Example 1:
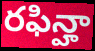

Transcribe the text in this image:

రఫిన్హా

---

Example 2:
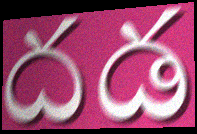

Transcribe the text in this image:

దడ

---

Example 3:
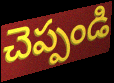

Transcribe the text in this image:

చెప్పండి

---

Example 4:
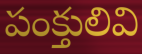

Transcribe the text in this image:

పంక్తులివి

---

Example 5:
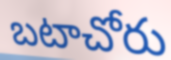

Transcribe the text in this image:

బటాచోరు